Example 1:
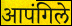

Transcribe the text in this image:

आपंगिले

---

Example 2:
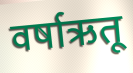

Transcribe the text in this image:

वर्षाऋतू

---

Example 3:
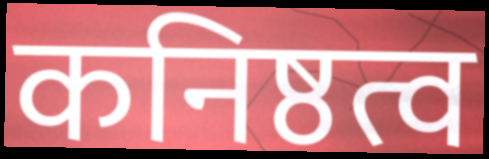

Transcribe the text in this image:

कनिष्ठत्व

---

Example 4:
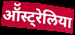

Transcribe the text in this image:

ऑॅस्ट्रेलिया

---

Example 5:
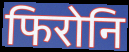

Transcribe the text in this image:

फिरोनि